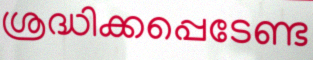
ശ്രദ്ധിക്കപ്പെടേണ്ട